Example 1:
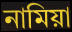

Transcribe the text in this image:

নামিয়া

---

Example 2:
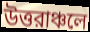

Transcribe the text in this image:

উত্তরাঞ্চলে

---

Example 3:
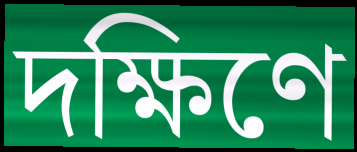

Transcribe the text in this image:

দক্ষিণে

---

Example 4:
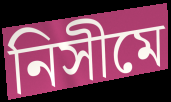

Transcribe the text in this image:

নিসীমে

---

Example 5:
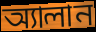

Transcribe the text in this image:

অ্যালান